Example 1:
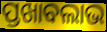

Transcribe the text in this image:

ପ୍ତଖାବଲାଭ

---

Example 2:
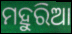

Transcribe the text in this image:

ମହୁରିଆ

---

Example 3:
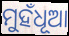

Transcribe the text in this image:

ମୁହଁଧୂଆ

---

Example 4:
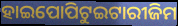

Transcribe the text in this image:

ହାଇପୋପିଟୁଇଟାରୀଜିମ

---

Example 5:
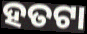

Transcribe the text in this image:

ହତଟା